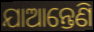
ଯାଆନ୍ତେଣି